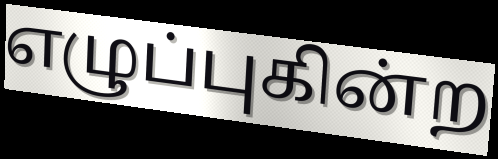
எழுப்புகின்ற